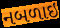
નબળાઇ